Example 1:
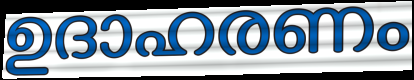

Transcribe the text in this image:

ഉദാഹരണം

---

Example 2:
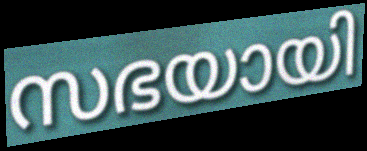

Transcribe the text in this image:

സഭയായി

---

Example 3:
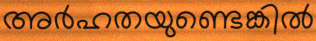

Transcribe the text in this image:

അർഹതയുണ്ടെങ്കിൽ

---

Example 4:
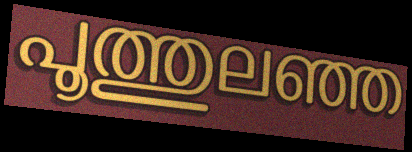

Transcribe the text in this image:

പൂത്തുലഞ്ഞ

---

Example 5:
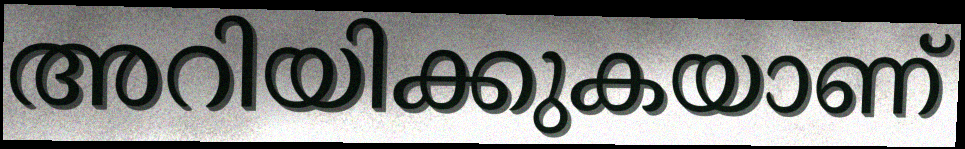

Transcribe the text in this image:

അറിയിക്കുകയാണ്